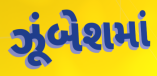
ઝૂંબેશમાં